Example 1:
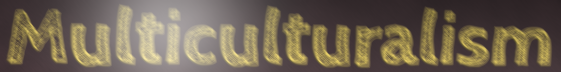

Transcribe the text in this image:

Multiculturalism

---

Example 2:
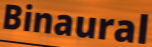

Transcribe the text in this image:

Binaural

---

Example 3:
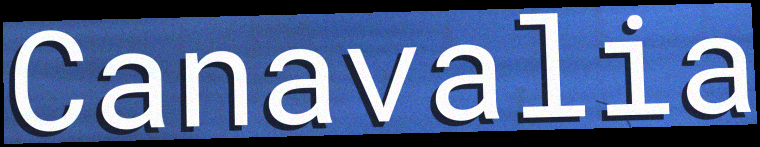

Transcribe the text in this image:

Canavalia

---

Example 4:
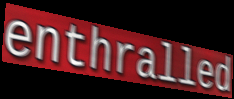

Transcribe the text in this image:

enthralled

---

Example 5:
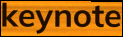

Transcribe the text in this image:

keynote